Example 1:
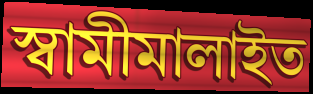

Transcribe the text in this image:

স্বামীমালাইত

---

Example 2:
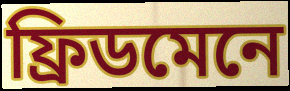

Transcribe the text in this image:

ফ্ৰিডমেনে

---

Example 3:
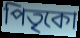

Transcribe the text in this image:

পিতৃকো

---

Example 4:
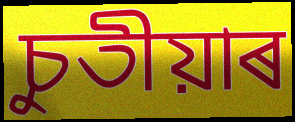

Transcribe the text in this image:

চুতীয়াৰ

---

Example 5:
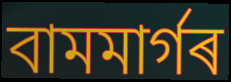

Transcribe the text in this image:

বামমাৰ্গৰ